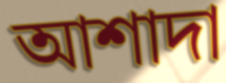
আশাদা